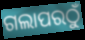
ଗଲାପରଠୁଁ